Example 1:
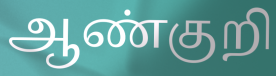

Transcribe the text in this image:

ஆண்குறி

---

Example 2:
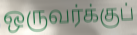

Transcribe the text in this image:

ஒருவர்க்குப்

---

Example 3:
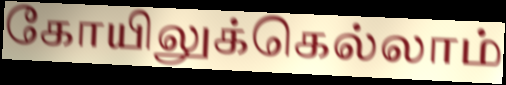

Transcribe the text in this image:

கோயிலுக்கெல்லாம்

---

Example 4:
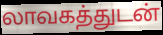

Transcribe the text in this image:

லாவகத்துடன்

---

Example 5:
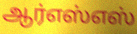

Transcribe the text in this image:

ஆர்எஸ்எஸ்